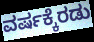
ವರ್ಷಕ್ಕೆರಡು